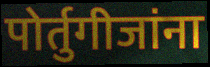
पोर्तुगीजांना